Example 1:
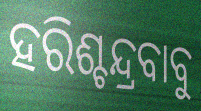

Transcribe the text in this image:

ହରିଶ୍ଚନ୍ଦ୍ରବାବୁ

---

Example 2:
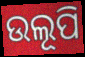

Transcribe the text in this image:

ଉଲୂପି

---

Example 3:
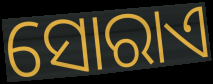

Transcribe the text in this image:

ସୋରାଏ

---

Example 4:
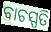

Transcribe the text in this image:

ବାଚସ୍ପତି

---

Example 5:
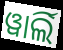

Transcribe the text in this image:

ୱାର୍ଲି